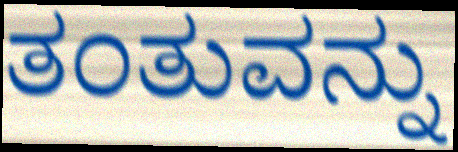
ತಂತುವನ್ನು